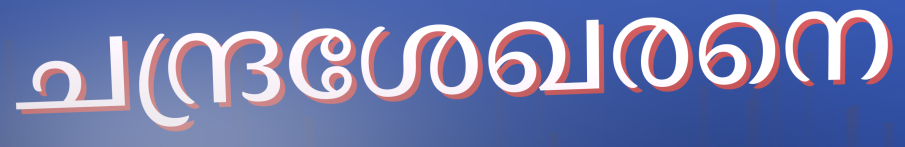
ചന്ദ്രശേഖരനെ